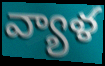
వ్యాళ